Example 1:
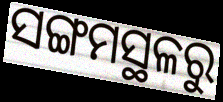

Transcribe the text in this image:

ସଙ୍ଗମସ୍ଥଳରୁ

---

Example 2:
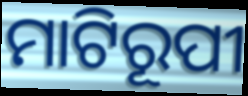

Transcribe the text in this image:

ମାଟିରୂପୀ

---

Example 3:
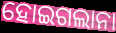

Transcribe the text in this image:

ହୋଇଗଲାନା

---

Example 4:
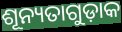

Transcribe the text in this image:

ଶୂନ୍ୟତାଗୁଡ଼ାକ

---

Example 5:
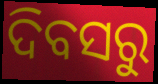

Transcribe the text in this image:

ଦିବସରୁ